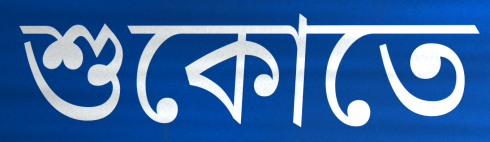
শুকোতে